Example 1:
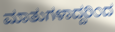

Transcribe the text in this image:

ಮಾತುಗಳಾದ್ದರಿಂದ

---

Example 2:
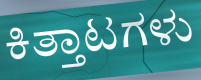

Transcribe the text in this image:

ಕಿತ್ತಾಟಗಳು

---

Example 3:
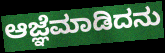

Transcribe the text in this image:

ಆಜ್ಞೆಮಾಡಿದನು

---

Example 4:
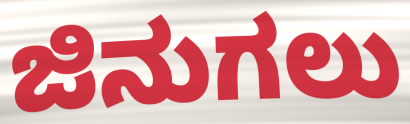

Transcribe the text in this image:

ಜಿನುಗಲು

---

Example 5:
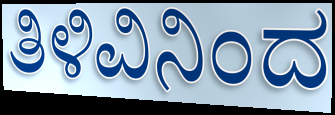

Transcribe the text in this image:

ತಿಳಿವಿನಿಂದ